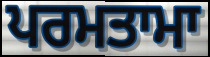
ਪਰਮਤਾਮਾ